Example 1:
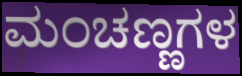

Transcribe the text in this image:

ಮಂಚಣ್ಣಗಳ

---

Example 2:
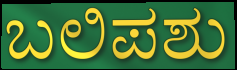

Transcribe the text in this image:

ಬಲಿಪಶು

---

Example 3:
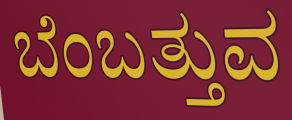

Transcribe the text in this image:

ಬೆಂಬತ್ತುವ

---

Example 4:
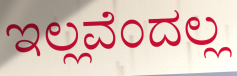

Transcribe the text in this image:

ಇಲ್ಲವೆಂದಲ್ಲ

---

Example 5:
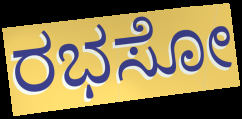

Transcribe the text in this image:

ರಭಸೋ